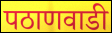
पठाणवाडी